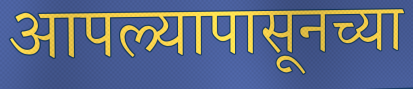
आपल्यापासूनच्या